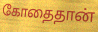
கோதைதான்